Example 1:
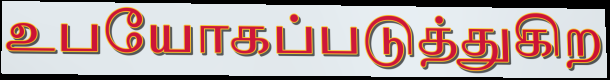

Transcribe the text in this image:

உபயோகப்படுத்துகிற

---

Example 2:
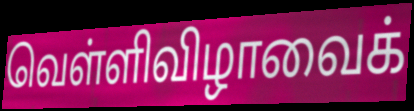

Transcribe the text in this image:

வெள்ளிவிழாவைக்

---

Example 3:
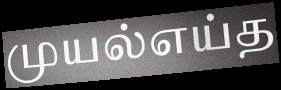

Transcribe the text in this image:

முயல்எய்த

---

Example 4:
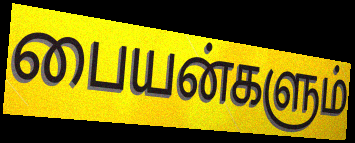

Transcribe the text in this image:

பையன்களும்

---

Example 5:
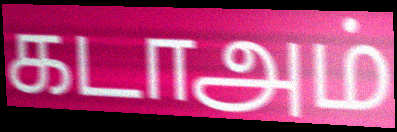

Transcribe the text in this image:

கடாஅம்